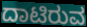
ದಾಟಿರುವ